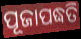
ପୂଜାପଦ୍ଧତି